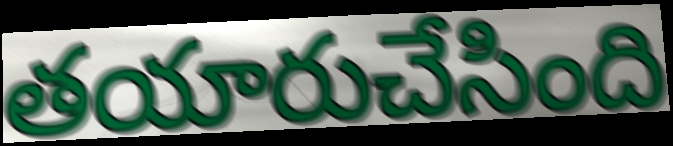
తయారుచేసింది